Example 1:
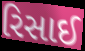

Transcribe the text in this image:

રિસાઈ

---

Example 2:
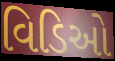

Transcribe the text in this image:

વિડિઓ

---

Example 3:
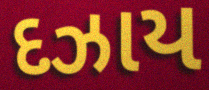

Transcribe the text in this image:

દઝાય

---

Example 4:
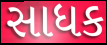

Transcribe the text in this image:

સાધક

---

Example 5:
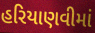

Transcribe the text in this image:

હરિયાણવીમાં